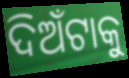
ଦିଅଁଟାକୁ